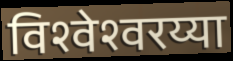
विश्वेश्वरय्या